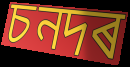
চনদৰ